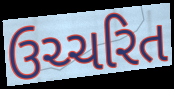
ઉચ્ચરિત